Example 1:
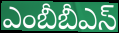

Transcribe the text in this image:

ఎంబీబీఎస్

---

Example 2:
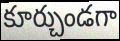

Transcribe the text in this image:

కూర్చుండగా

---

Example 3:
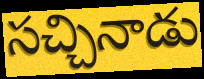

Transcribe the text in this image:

సచ్చినాడు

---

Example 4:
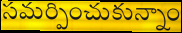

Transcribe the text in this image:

సమర్పించుకున్నాం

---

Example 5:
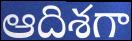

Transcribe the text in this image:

ఆదిశగా